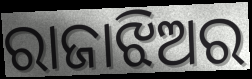
ରାଜାଝିଅର